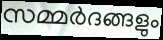
സമ്മർദങ്ങളും